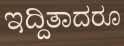
ಇದ್ದಿತಾದರೂ